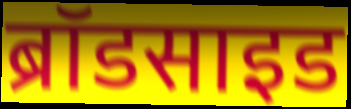
ब्रॉडसाइड